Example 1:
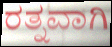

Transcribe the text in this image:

ರತ್ನವಾಗಿ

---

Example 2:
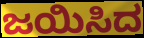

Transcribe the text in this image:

ಜಯಿಸಿದ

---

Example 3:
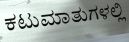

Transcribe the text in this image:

ಕಟುಮಾತುಗಳಲ್ಲಿ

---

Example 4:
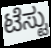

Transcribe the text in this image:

ಟೆಸ್ಟು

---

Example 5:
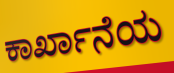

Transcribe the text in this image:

ಕಾರ್ಖಾನೆಯ